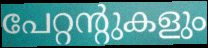
പേറ്റന്റുകളും